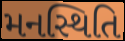
મનસ્થિતિ